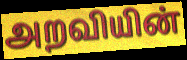
அறவியின்